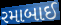
રમાબાઈ